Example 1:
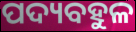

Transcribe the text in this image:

ପଦ୍ୟବହୁଳ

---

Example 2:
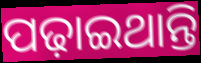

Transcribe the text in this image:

ପଢ଼ାଇଥାନ୍ତି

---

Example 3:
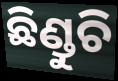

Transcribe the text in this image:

ଛିଣ୍ଡୁଚି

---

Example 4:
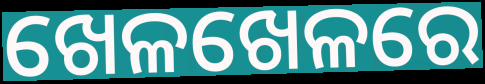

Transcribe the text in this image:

ଖେଳଖେଳରେ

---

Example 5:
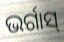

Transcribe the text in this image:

ଭର୍ଗାସ୍